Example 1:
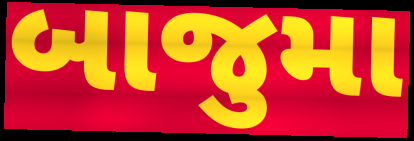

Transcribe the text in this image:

બાજુમા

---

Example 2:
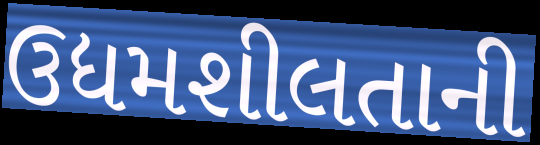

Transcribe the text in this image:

ઉદ્યમશીલતાની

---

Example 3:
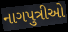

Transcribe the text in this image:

નાગપુત્રીઓ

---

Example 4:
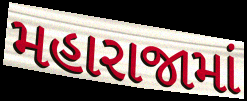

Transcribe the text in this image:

મહારાજામાં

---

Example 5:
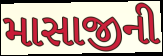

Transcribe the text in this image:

માસાજીની